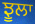
ਝੂਲਾ